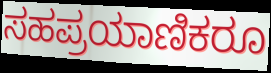
ಸಹಪ್ರಯಾಣಿಕರೂ